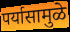
पर्यासामुळे